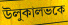
উলুকালভকে